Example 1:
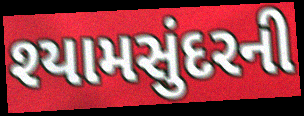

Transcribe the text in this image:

શ્યામસુંદરની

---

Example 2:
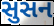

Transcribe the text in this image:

સુસન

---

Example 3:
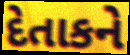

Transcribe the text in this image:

દેતાકને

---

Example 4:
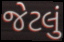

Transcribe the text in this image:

જેટલું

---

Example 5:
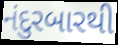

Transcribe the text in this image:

નંદુરબારથી